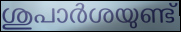
ശുപാർശയുണ്ട്